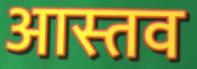
आस्तव